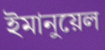
ইমানুয়েল